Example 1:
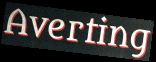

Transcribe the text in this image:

Averting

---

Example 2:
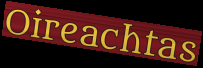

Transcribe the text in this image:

Oireachtas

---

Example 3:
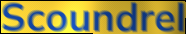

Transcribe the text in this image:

Scoundrel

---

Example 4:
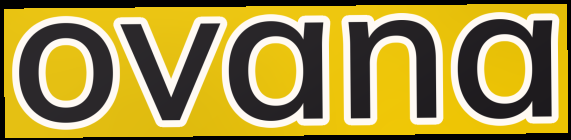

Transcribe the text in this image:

ovana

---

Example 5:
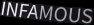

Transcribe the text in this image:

INFAMOUS